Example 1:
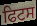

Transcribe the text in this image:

ਫਿਟਸ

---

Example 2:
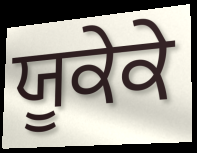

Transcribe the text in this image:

ਯੂਕੇਕੇ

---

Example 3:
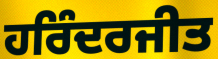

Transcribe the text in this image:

ਹਰਿੰਦਰਜੀਤ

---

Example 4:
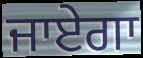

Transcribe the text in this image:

ਜਾਏਗਾ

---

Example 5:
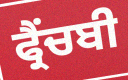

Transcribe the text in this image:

ਫ੍ਰੈਂਚਬੀ